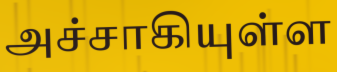
அச்சாகியுள்ள